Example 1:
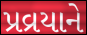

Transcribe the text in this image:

પ્રવ્રયાને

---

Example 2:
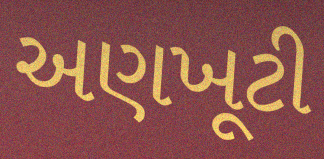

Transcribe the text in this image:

અણખૂટી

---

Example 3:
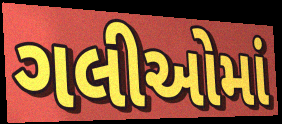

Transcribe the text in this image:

ગલીઓમાં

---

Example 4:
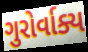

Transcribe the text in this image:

ગુરોર્વાક્ય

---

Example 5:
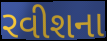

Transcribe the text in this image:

રવીશના